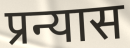
प्रन्यास